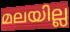
മലയില്ല